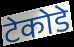
टेकोडे